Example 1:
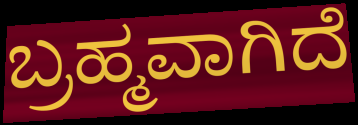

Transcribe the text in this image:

ಬ್ರಹ್ಮವಾಗಿದೆ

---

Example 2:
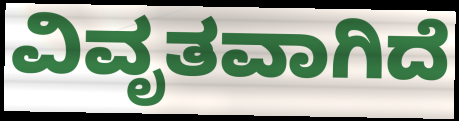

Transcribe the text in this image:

ವಿವೃತವಾಗಿದೆ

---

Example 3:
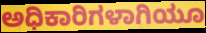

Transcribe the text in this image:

ಅಧಿಕಾರಿಗಳಾಗಿಯೂ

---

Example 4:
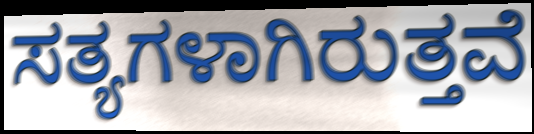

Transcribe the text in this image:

ಸತ್ಯಗಳಾಗಿರುತ್ತವೆ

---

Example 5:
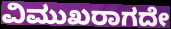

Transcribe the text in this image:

ವಿಮುಖರಾಗದೇ